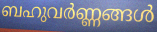
ബഹുവർണ്ണങ്ങൾ